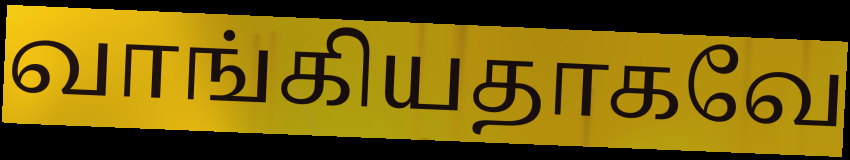
வாங்கியதாகவே